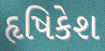
હૃષિકેશ